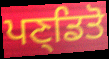
ਪਣ੍ਡਿਤੋ